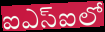
ఐఎస్ఐలో